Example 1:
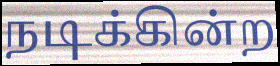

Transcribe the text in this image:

நடிக்கின்ற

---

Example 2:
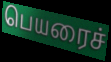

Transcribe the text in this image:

பெயரைச்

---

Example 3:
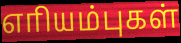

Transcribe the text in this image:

எரியம்புகள்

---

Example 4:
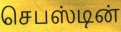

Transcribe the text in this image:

செபஸ்டின்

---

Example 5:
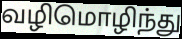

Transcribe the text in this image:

வழிமொழிந்து